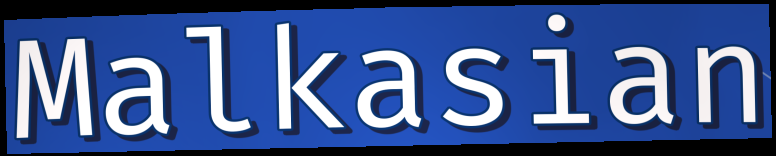
Malkasian